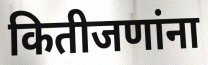
कितीजणांना